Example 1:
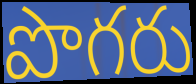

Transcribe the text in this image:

పొగరు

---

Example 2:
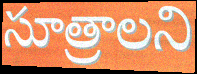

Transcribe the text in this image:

సూత్రాలని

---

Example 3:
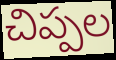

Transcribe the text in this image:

చిప్పల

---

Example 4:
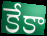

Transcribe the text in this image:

కేకా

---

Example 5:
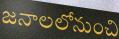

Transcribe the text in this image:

జనాలలోనుంచి